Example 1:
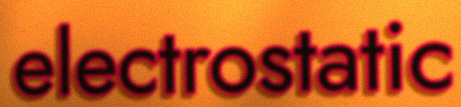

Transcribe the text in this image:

electrostatic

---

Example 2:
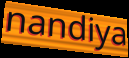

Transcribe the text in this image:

nandiya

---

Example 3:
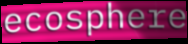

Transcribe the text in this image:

ecosphere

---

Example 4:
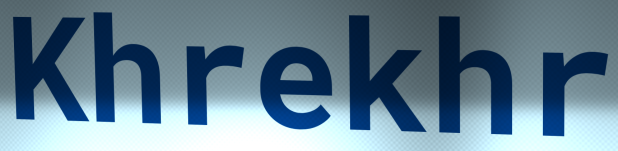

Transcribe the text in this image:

Khrekhr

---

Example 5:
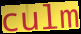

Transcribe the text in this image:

culm